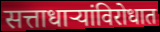
सत्ताधाऱ्यांविरोधात